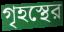
গৃহস্থের